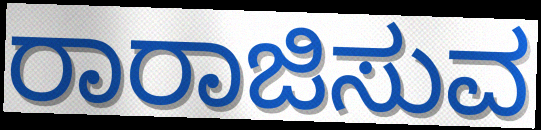
ರಾರಾಜಿಸುವ